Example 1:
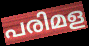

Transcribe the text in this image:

പരിമള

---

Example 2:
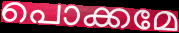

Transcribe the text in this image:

പൊക്കമേ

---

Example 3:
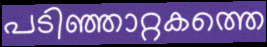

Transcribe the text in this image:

പടിഞ്ഞാറ്റകത്തെ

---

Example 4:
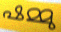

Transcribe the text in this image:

ഷമ്മു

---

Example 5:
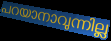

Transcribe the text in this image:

പറയാനാവുന്നില്ല